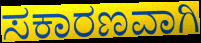
ಸಕಾರಣವಾಗಿ